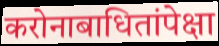
करोनाबाधितांपेक्षा